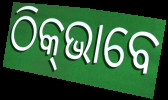
ଠିକ୍‌ଭାବେ